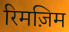
रिमज़िम